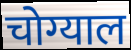
चोग्याल